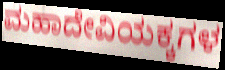
ಮಹಾದೇವಿಯಕ್ಕಗಳ